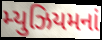
મ્યુઝિયમનાં